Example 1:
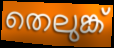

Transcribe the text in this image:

തെലുങ്ക്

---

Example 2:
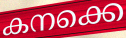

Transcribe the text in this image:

കനക്കെ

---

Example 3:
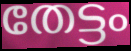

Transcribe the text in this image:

തേട്ടം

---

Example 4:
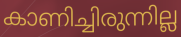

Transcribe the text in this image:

കാണിച്ചിരുന്നില്ല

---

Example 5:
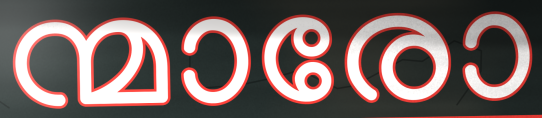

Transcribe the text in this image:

ന്മാരോ